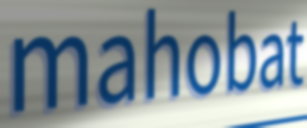
mahobat